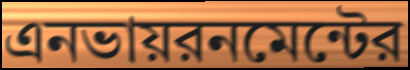
এনভায়রনমেন্টের